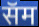
सॅम